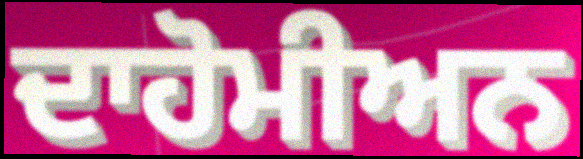
ਦਾਹੋਮੀਅਨ